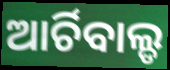
ଆର୍ଚିବାଲ୍ଡ